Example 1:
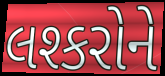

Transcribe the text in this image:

લશ્કરોને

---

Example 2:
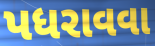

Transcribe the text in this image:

પધરાવવા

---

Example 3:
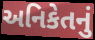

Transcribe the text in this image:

અનિકેતનું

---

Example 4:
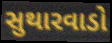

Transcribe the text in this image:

સુથારવાડો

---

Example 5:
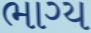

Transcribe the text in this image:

ભાગ્ય